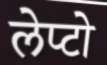
लेप्टो